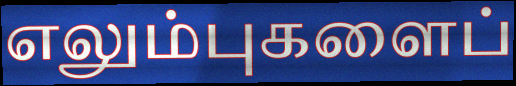
எலும்புகளைப்